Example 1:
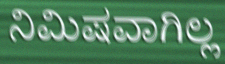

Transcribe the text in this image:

ನಿಮಿಷವಾಗಿಲ್ಲ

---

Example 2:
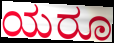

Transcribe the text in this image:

ಯರೂ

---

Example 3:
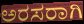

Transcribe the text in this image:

ಅರಸರಾಗಿ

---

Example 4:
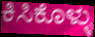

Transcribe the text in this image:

ಕಿಸಿಕೊಳ್ಳು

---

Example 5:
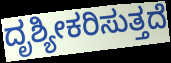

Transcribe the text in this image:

ದೃಶ್ಯೀಕರಿಸುತ್ತದೆ